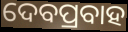
ଦେବପ୍ରବାହ